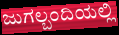
ಜುಗಲ್ಬಂದಿಯಲ್ಲಿ